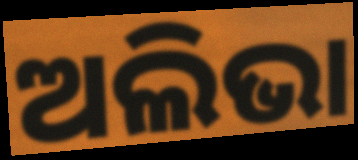
ଅଲିଭା